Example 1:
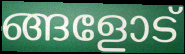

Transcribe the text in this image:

ങ്ങളോട്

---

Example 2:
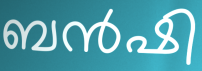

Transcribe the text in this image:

ബൻഷി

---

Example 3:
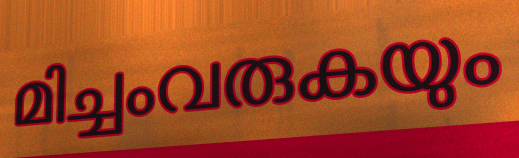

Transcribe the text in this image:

മിച്ചംവരുകയും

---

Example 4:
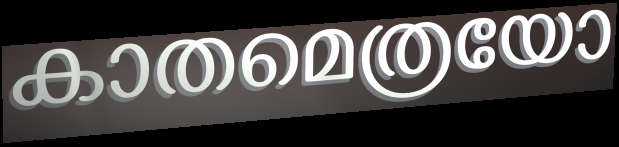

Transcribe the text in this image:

കാതമെത്രയോ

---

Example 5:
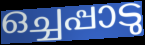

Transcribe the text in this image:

ഒച്ചപ്പാടു